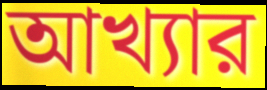
আখ্যার